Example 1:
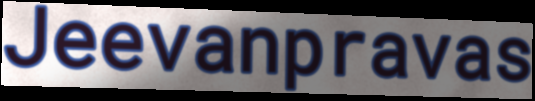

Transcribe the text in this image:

Jeevanpravas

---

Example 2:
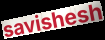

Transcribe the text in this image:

savishesh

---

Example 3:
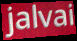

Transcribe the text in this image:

jalvai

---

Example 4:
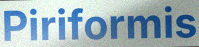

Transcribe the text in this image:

Piriformis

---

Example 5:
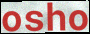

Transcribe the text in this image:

osho